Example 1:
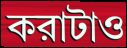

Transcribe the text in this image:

করাটাও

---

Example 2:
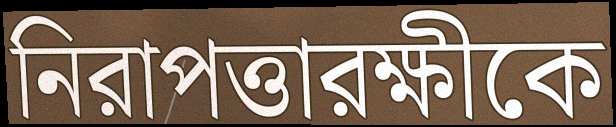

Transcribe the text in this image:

নিরাপত্তারক্ষীকে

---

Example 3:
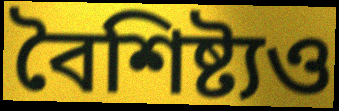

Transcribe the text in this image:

বৈশিষ্ট্যও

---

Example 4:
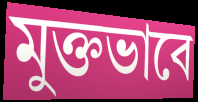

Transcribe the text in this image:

মুক্তভাবে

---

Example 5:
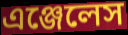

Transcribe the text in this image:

এঞ্জেলেস